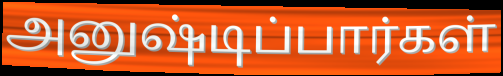
அனுஷ்டிப்பார்கள்